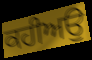
ਕਹੀਅਉ